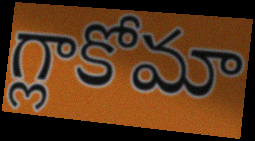
గ్లాకోమా